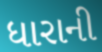
ધારાની